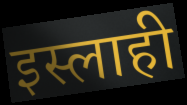
इस्लाही